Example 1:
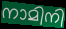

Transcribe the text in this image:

നാമിനി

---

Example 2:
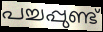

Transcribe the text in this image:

പച്ചപ്പുണ്ട്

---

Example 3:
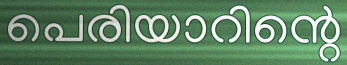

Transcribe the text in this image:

പെരിയാറിന്റെ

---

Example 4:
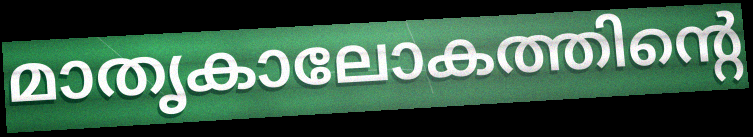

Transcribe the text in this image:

മാതൃകാലോകത്തിന്റെ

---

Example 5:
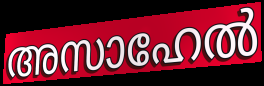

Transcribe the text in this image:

അസാഹേൽ